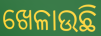
ଖେଳାଉଛି